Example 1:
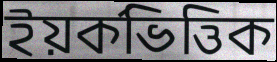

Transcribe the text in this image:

ইয়র্কভিত্তিক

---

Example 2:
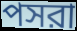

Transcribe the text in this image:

পসরা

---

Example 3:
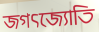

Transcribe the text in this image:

জগৎজ্যোতি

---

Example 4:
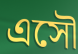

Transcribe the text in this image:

এসৌ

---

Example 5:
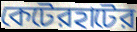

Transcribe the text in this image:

কেটেরহাটের